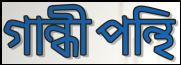
গান্ধীপন্থি